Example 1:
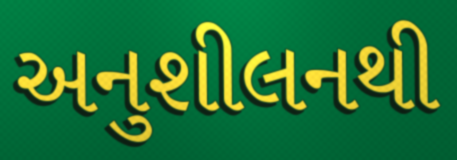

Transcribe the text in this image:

અનુશીલનથી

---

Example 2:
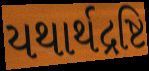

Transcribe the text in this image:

યથાર્થદ્રષ્ટિ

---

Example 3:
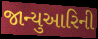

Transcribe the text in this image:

જાન્યુઆરિની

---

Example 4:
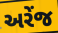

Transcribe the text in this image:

અરેંજ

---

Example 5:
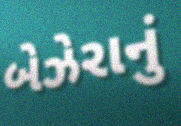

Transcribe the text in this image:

બેઝેરાનું